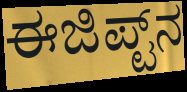
ಈಜಿಪ್ಟ್‌ನ